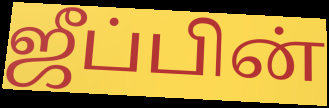
ஜீப்பின்